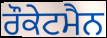
ਰੌਕੇਟਮੈਨ